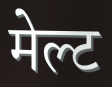
मेल्ट